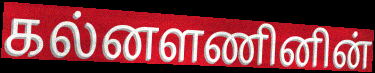
கல்னளணினின்